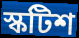
স্কটিশ